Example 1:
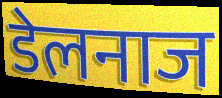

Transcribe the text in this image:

डेलनाज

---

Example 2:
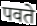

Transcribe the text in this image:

पवते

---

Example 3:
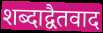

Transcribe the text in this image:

शब्दाद्वैतवाद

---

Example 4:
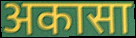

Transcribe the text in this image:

अकासा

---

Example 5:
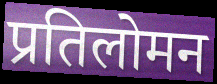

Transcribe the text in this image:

प्रतिलोमन